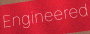
Engineered